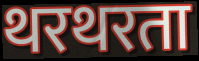
थरथरता